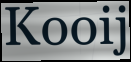
Kooij